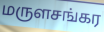
மருளசங்கர